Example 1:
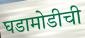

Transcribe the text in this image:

घडामोडीची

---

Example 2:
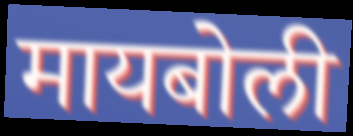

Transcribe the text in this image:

मायबोली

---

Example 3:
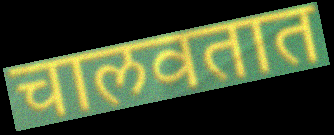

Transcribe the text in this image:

चालवतात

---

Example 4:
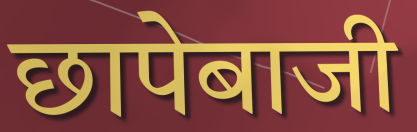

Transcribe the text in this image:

छापेबाजी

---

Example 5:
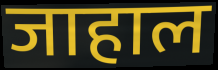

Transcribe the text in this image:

जाहाल